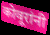
कोवूरांनी